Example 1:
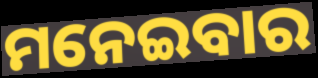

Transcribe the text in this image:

ମନେଇବାର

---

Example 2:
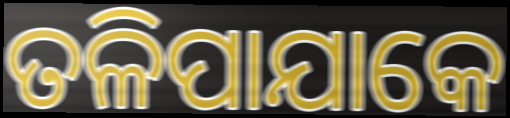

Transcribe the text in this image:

ତଳିପାଯାକେ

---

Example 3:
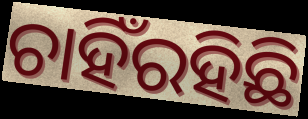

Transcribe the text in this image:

ଚାହିଁରହିଛି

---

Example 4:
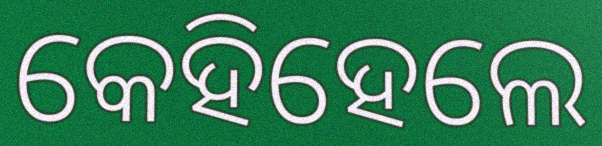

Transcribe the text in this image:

କେହିହେଲେ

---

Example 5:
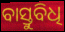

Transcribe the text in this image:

ବାସ୍ତୁବିଧି